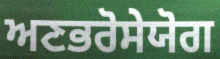
ਅਣਭਰੋਸੇਯੋਗ